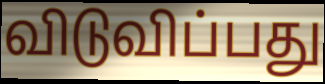
விடுவிப்பது